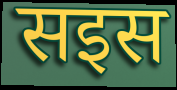
सइस